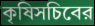
কৃষিসচিবের